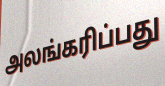
அலங்கரிப்பது